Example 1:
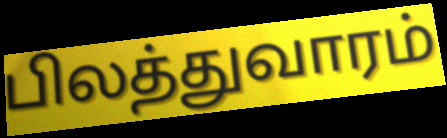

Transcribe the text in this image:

பிலத்துவாரம்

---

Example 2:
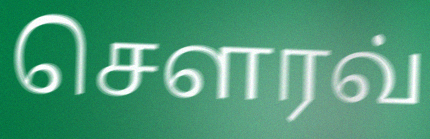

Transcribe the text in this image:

சௌரவ்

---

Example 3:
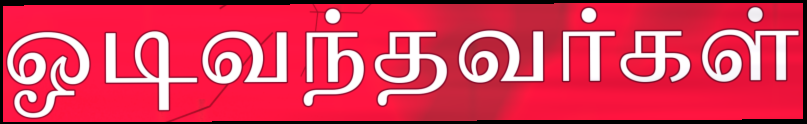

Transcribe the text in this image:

ஓடிவந்தவர்கள்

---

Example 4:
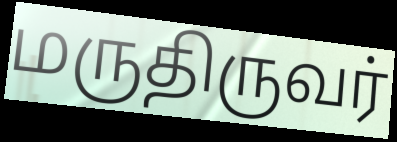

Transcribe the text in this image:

மருதிருவர்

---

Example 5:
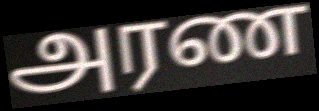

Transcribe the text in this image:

அரண